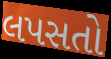
લપસતો